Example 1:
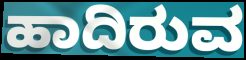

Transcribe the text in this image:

ಹಾದಿರುವ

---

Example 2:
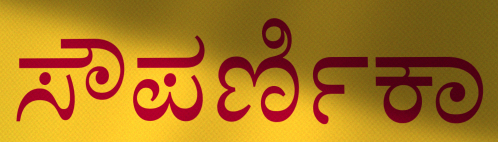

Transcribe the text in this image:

ಸೌಪರ್ಣಿಕಾ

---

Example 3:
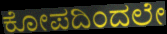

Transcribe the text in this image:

ಕೋಪದಿಂದಲೇ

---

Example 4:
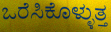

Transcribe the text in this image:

ಒರೆಸಿಕೊಳ್ಳುತ್ತ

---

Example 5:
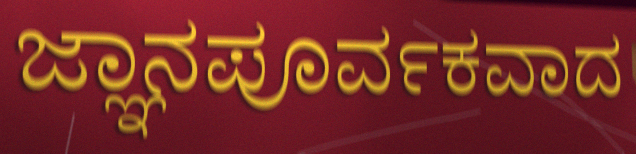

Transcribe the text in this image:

ಜ್ಞಾನಪೂರ್ವಕವಾದ